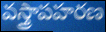
వస్త్రాపహరణ